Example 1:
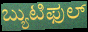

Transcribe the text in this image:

ಬ್ಯುಟಿಫುಲ್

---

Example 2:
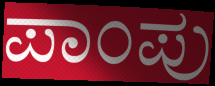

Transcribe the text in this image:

ಪಾಂಪು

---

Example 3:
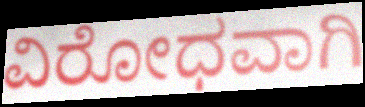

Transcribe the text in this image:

ವಿರೋಧವಾಗಿ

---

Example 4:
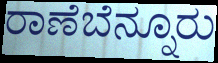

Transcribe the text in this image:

ರಾಣೆಬೆನ್ನೂರು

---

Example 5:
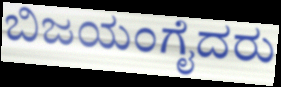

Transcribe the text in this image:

ಬಿಜಯಂಗೈದರು